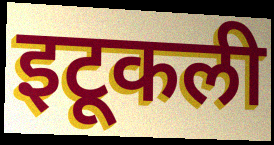
इटूकली